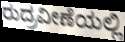
ರುದ್ರವೀಣೆಯಲ್ಲಿ